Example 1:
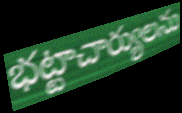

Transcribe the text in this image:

భట్టాచార్యులను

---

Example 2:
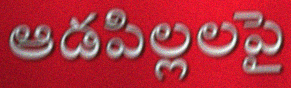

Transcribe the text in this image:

ఆడపిల్లలపై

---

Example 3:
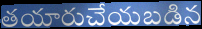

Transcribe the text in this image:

తయారుచేయబడిన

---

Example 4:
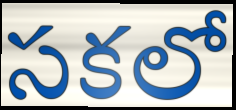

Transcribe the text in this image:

సకలో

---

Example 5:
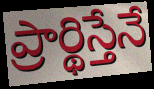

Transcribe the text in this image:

ప్రార్థిస్తేనే